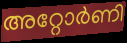
അറ്റോർണി